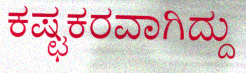
ಕಷ್ಟಕರವಾಗಿದ್ದು